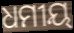
ଧମୀୟ